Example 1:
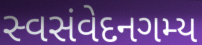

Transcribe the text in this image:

સ્વસંવેદનગમ્ય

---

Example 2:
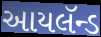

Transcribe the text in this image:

આયલૅન્ડ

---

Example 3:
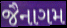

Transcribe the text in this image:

જૈનાગમ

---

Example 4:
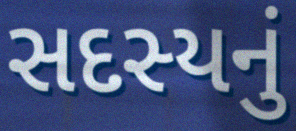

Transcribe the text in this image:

સદસ્યનું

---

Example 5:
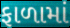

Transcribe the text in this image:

ફાળામાં